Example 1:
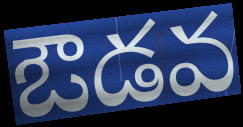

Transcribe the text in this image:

ఔడవ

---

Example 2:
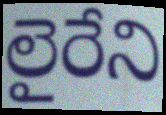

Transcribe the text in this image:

లైరేని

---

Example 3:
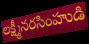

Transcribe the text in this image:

లక్ష్మీనరసింహుడి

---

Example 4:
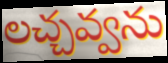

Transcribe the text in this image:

లచ్చవ్వను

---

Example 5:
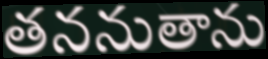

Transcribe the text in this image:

తననుతాను